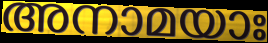
അനാമയാഃ